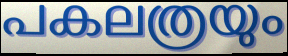
പകലത്രയും